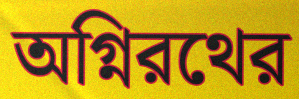
অগ্নিরথের